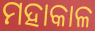
ମହାକାଳ